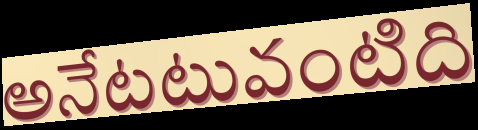
అనేటటువంటిది